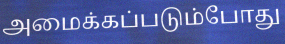
அமைக்கப்படும்போது